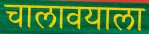
चालावयाला